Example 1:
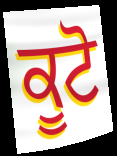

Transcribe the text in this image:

ਕੂਟੋ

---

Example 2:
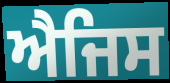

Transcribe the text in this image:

ਐਜਿਸ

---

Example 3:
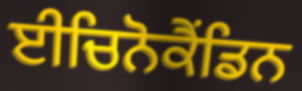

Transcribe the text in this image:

ਈਚਿਨੋਕੈਂਡਿਨ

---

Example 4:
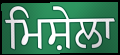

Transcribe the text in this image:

ਮਿਸ਼ੇਲਾ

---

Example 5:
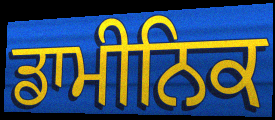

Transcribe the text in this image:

ਡਾਮੀਨਿਕ